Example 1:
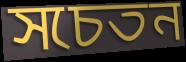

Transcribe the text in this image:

সচেতন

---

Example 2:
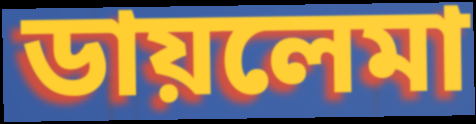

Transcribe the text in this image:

ডায়লেমা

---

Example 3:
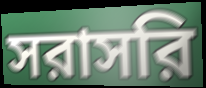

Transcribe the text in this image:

সরাসরি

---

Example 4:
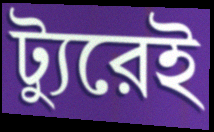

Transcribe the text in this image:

ট্যুরেই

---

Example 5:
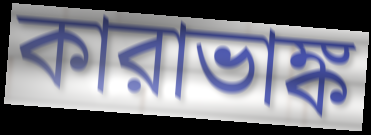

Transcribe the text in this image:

কারাভাঙ্ক